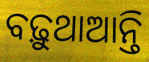
ବଢ଼ୁଥାଆନ୍ତି